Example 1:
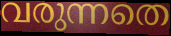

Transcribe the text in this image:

വരുന്നതെ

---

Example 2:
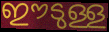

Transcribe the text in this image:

ഈടുള്ള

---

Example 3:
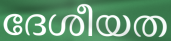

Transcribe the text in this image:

ദേശീയത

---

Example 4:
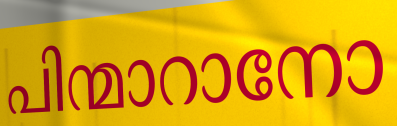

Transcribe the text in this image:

പിന്മാറാനോ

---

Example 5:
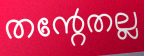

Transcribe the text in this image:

തന്റേതല്ല